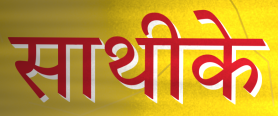
साथीके